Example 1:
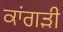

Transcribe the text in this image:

ਕਾਂਗੜੀ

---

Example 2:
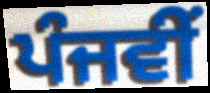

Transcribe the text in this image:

ਪੰਜਵੀਂ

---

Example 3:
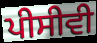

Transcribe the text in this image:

ਪੀਸੀਵੀ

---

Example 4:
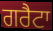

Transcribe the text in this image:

ਗਰੈਟਾ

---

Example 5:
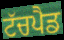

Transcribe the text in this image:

ਟੱਚਪੈਡ